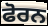
ਫੋਰਨ